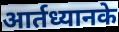
आर्तध्यानके